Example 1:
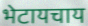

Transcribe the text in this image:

भेटायचाय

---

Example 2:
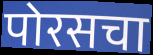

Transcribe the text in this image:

पोरसचा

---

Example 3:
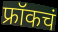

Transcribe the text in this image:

फ्रॉकचं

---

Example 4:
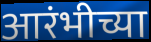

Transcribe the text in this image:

आरंभीच्या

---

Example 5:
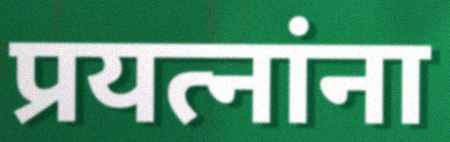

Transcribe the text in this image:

प्रयत्नांना